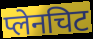
प्लेनचिट